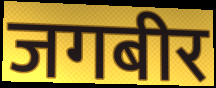
जगबीर